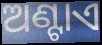
ଅଣ୍ଟାଏ